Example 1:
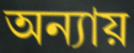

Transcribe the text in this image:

অন্যায়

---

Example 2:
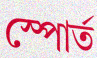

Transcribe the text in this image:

স্পোর্ত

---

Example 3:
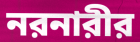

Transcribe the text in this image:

নরনারীর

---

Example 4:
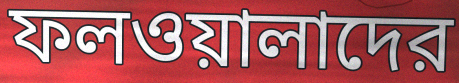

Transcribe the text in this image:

ফলওয়ালাদের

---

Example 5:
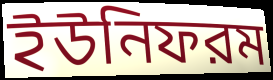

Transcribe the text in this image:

ইউনিফরম